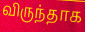
விருந்தாக